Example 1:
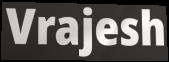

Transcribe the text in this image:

Vrajesh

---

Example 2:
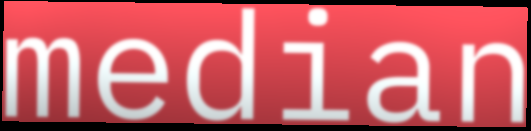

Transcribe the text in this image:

median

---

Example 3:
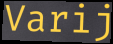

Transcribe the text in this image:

Varij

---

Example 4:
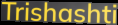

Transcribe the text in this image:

Trishashti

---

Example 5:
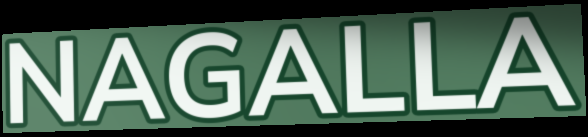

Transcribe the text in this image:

NAGALLA